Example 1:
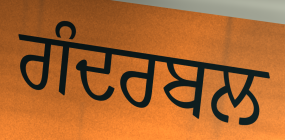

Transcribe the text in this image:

ਗੰਦਰਬਲ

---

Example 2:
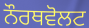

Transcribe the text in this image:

ਨੌਰਥਵੋਲਟ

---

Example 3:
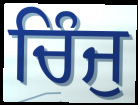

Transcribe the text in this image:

ਚਿੰਜੁ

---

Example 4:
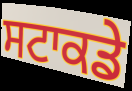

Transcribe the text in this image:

ਸਟਾਕਡੇ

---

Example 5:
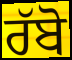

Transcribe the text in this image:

ਰੱਬੋ